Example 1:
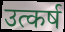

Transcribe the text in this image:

उत्कर्ष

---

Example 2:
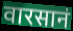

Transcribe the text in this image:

वारसानं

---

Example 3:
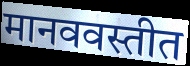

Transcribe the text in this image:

मानववस्तीत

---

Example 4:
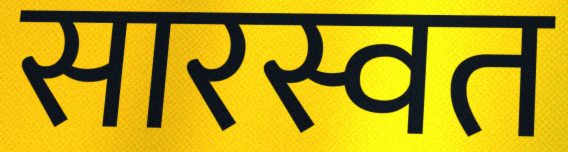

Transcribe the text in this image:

सारस्वत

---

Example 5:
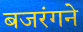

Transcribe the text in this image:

बजरंगने